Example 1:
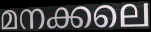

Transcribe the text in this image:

മനക്കലെ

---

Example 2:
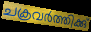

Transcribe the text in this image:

ചക്രവർത്തിക്കു്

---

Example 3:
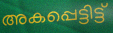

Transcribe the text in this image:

അകപ്പെട്ടിട്ട്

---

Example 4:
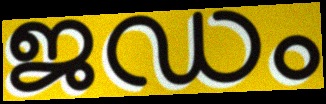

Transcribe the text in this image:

ജഡം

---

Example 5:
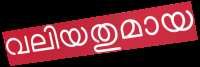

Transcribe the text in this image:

വലിയതുമായ